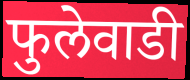
फुलेवाडी